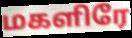
மகளிரே